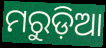
ମରୁଡ଼ିଆ